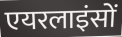
एयरलाइंसों